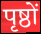
पृष्ठों